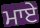
ਮਾਏ